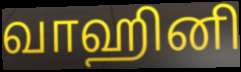
வாஹினி